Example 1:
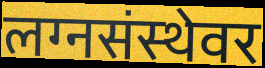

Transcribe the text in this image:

लग्नसंस्थेवर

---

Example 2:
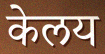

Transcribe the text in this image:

केलय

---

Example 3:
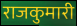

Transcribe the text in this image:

राजकुमारी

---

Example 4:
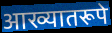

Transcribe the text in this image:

आख्यातरूपे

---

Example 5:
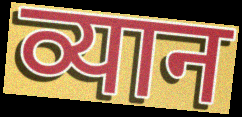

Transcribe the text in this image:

व्यान